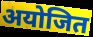
अयोजित